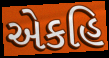
એકહિ